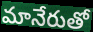
మానేరుతో